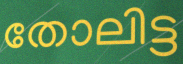
തോലിട്ട